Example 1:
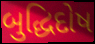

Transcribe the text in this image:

બુદ્ધિદોષ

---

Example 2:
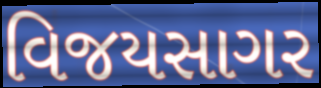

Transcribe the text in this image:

વિજયસાગર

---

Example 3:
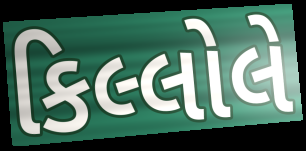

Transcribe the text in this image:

કિલ્લોલે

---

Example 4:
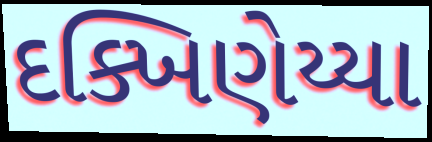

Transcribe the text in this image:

દક્ખિણેય્યા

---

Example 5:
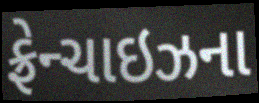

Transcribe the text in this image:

ફ્રેન્ચાઇઝના